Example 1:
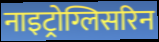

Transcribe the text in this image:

नाइट्रोग्लिसरिन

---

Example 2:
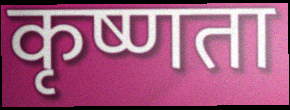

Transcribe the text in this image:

कृष्णता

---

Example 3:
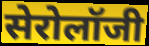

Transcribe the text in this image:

सेरोलॉजी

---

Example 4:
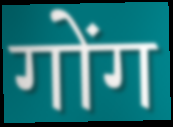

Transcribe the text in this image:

गोंग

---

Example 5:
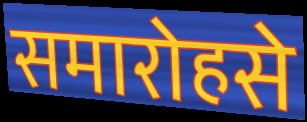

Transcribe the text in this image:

समारोहसे